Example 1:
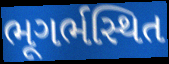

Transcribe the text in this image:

ભૂગર્ભસ્થિત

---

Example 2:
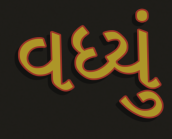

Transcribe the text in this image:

વધ્યું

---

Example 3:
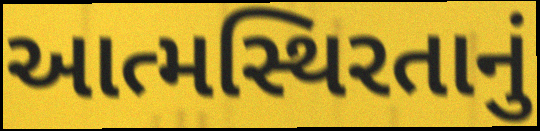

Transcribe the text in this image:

આત્મસ્થિરતાનું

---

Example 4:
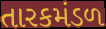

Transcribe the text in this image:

તારકમંડળ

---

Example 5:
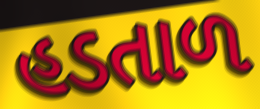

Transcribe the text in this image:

હડતાળ